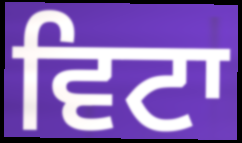
ਵਿਟਾ